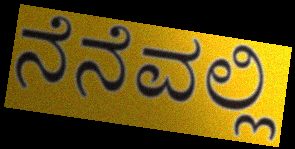
ನೆನೆವಲ್ಲಿ